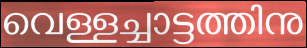
വെള്ളച്ചാട്ടത്തിനു